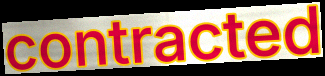
contracted